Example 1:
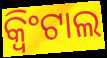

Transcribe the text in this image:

କ୍ୱିଂଟାଲ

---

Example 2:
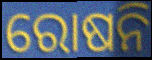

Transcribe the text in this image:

ରୋଷନି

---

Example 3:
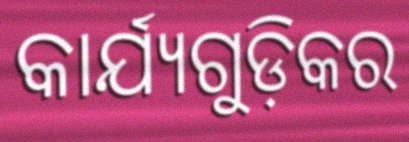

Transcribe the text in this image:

କାର୍ଯ୍ୟଗୁଡ଼ିକର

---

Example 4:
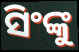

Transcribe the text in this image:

ସିଂଙ୍କୁ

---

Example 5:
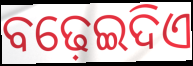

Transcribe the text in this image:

ବଢ଼େଇଦିଏ